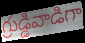
గ్రుడ్డివాడిగా